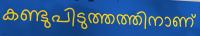
കണ്ടുപിടുത്തത്തിനാണ്